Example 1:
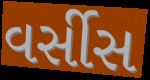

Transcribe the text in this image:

વર્સીસ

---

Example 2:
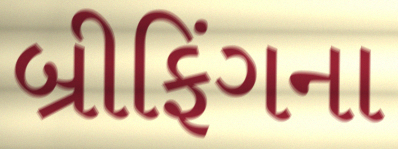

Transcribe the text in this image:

બ્રીફિંગના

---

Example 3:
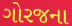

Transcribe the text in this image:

ગોરજના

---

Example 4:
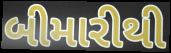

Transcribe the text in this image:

બીમારીથી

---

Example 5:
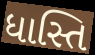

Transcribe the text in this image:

ધાસ્તિ